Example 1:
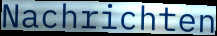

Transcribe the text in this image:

Nachrichten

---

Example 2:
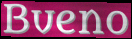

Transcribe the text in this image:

Bueno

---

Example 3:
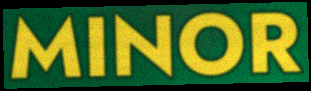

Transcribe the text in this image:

MINOR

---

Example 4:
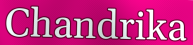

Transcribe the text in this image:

Chandrika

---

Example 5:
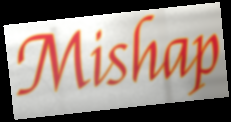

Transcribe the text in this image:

Mishap